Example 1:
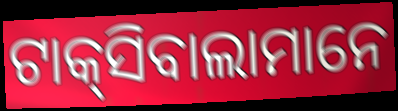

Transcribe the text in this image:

ଟାକ୍‌ସିବାଲାମାନେ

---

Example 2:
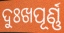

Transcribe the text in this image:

ଦୁଃଖପୂର୍ଣ୍ଣ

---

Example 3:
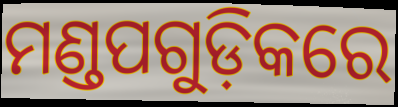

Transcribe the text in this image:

ମଣ୍ଡପଗୁଡ଼ିକରେ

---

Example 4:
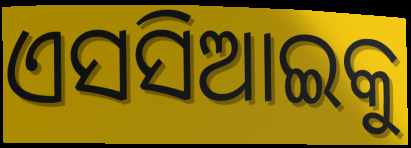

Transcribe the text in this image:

ଏସସିଆଇକୁ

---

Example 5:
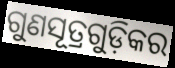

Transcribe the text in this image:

ଗୁଣସୂତ୍ରଗୁଡ଼ିକର